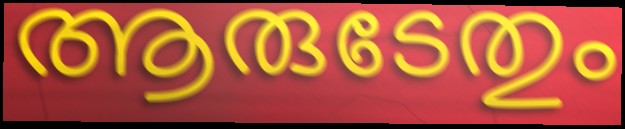
ആരുടേതും